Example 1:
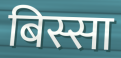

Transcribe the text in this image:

बिस्सा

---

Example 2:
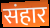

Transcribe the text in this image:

संहार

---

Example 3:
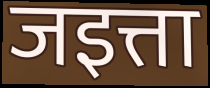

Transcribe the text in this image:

जइत्ता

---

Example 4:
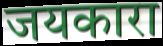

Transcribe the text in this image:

जयकारा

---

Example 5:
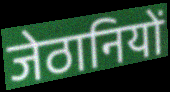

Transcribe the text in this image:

जेठानियों